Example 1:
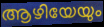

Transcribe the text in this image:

ആഴിയേയും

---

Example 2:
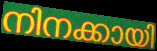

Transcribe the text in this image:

നിനക്കായി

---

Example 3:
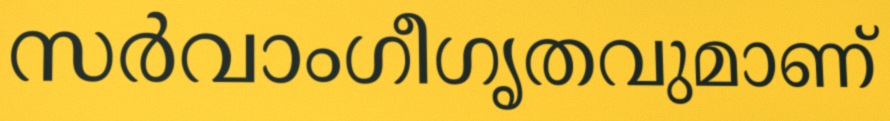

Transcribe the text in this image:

സർവാംഗീഗൃതവുമാണ്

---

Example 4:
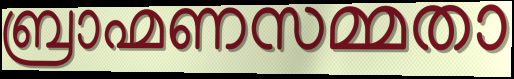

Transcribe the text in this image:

ബ്രാഹ്മണസമ്മതാ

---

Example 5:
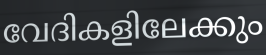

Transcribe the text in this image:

വേദികളിലേക്കും